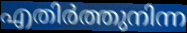
എതിർത്തുനിന്ന